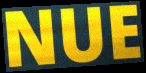
NUE